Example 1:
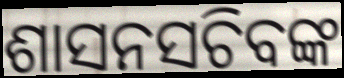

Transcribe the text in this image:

ଶାସନସଚିବଙ୍କ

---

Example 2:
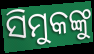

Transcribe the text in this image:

ସିମୁକଙ୍କୁ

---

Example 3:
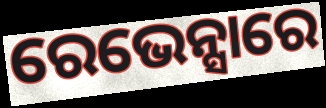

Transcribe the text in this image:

ରେଭେନ୍ସାରେ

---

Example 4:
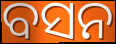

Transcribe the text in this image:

ବସନ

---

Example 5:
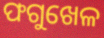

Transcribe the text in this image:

ଫଗୁଖେଳ